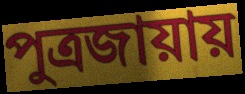
পুত্রজায়ায়